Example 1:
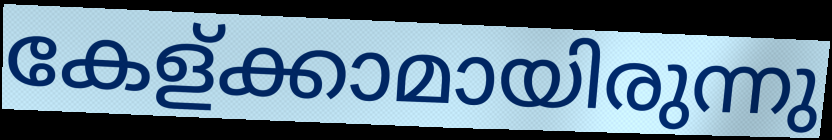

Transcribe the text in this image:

കേള്ക്കാമായിരുന്നു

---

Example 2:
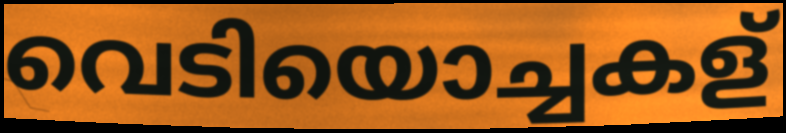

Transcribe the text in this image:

വെടിയൊച്ചകള്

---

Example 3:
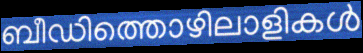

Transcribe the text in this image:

ബീഡിത്തൊഴിലാളികൾ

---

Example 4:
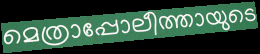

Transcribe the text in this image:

മെത്രാപ്പോലീത്തായുടെ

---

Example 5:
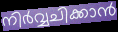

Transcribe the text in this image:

നിർവ്വചിക്കാൻ